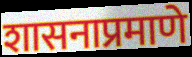
शासनाप्रमाणे